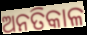
ଅନତିକାଳ